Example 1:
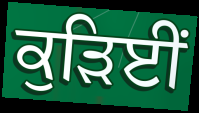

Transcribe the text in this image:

ਕੁੜਿਈਂ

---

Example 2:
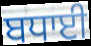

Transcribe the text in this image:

ਬਧਾਈ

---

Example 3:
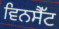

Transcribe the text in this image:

ਵਿਨਸੈੱਟ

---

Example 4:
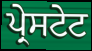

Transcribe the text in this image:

ਪ੍ਰੇਸਟੇਟ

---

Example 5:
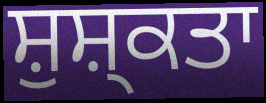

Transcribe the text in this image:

ਸ਼ੁਸ਼੍ਕਤਾ